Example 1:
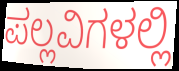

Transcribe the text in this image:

ಪಲ್ಲವಿಗಳಲ್ಲಿ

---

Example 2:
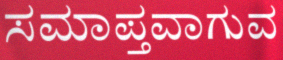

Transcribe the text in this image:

ಸಮಾಪ್ತವಾಗುವ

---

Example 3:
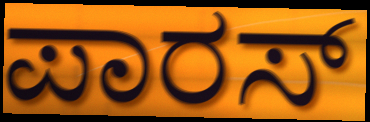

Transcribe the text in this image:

ಪಾರಸ್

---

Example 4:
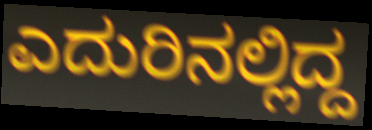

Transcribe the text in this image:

ಎದುರಿನಲ್ಲಿದ್ದ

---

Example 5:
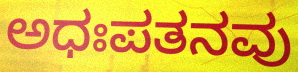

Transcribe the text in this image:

ಅಧಃಪತನವು